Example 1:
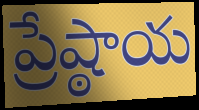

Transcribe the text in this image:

ప్రేష్ఠాయ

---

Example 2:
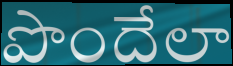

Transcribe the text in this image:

పొందేలా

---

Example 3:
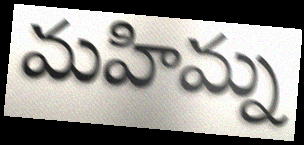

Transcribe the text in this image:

మహిమ్న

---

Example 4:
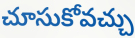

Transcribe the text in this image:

చూసుకోవచ్చు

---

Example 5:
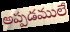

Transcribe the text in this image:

అప్పడములే